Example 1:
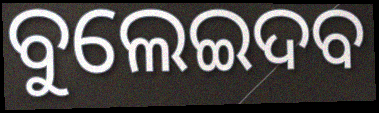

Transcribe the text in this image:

ବୁଲେଇଦବ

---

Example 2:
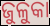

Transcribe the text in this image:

ଜୁଳୁକା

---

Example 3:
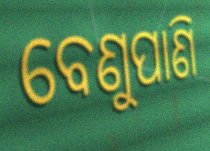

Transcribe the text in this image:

ବେଣୁପାଣି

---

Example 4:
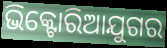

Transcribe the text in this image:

ଭିକ୍ଟୋରିଆଯୁଗର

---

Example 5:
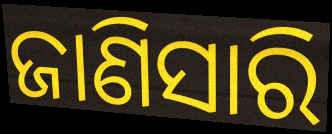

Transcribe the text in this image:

ଜାଣିସାରି